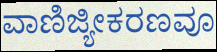
ವಾಣಿಜ್ಯೀಕರಣವೂ